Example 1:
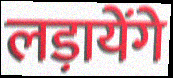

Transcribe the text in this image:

लड़ायेंगे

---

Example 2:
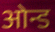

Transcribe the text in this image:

ओन्ड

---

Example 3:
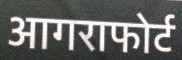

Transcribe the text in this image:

आगराफोर्ट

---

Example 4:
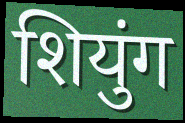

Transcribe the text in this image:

शियुंग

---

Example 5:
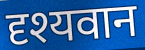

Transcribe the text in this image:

दृश्यवान